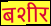
बशीर